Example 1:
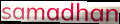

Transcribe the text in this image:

samadhan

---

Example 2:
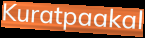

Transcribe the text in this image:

Kuratpaakal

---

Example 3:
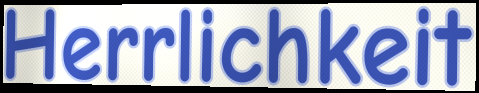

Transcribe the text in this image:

Herrlichkeit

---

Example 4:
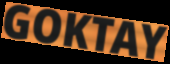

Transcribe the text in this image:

GOKTAY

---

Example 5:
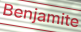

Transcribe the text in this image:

Benjamite